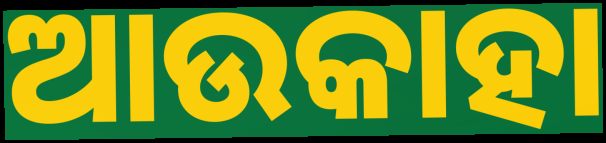
ଆଉକାହା